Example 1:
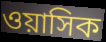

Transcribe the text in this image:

ওয়াসিক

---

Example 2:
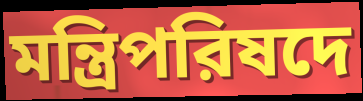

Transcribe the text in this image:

মন্ত্রিপরিষদে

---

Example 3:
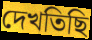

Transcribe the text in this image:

দেখতিছি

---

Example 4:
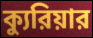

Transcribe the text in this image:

ক্যুরিয়ার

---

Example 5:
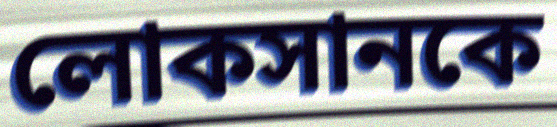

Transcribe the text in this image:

লোকসানকে